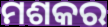
ମଶକର